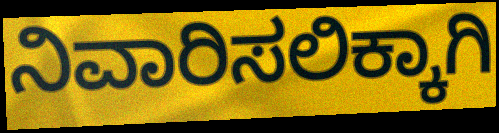
ನಿವಾರಿಸಲಿಕ್ಕಾಗಿ